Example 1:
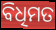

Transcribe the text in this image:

ବିଧିମତ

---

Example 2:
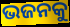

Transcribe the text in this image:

ଭଜନକୁ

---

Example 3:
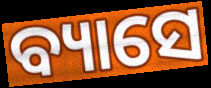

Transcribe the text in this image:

ବ୍ୟାସେ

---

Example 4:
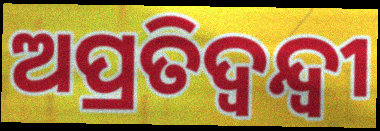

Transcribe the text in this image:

ଅପ୍ରତିଦ୍ବନ୍ଦ୍ବୀ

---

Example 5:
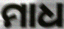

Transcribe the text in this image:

ମାଧ